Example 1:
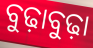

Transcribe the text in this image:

ବୁଢ଼ାବୁଢ଼ା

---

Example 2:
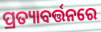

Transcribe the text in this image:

ପ୍ରତ୍ୟାବର୍ତ୍ତନରେ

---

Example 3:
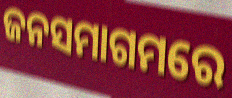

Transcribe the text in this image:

ଜନସମାଗମରେ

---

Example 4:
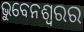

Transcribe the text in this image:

ଭୁବେନଶ୍ବରର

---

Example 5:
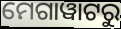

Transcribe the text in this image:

ମେଗାୱାଟରୁ